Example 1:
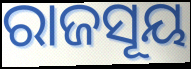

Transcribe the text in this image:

ରାଜସୂୟ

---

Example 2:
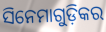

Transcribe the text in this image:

ସିନେମାଗୁଡ଼ିକର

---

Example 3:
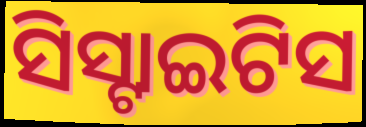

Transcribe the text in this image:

ସିସ୍ଟାଇଟିସ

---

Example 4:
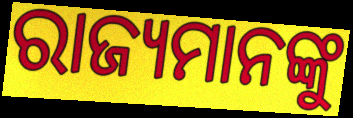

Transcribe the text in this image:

ରାଜ୍ଯମାନଙ୍କୁ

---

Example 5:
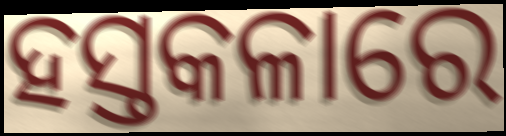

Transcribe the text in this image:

ହସ୍ତକଳାରେ